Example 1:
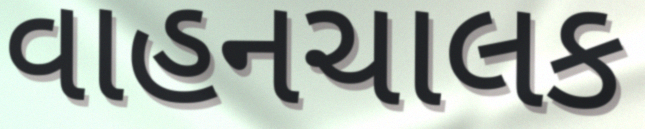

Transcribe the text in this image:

વાહનચાલક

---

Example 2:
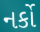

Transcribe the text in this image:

નર્કો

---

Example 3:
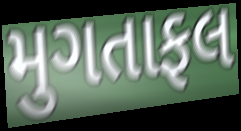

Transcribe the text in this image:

મુગતાફલ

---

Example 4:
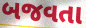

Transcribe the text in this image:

બજવતા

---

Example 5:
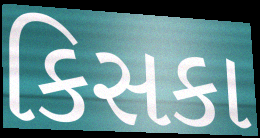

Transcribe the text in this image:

કિસકા